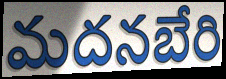
మదనబేరి